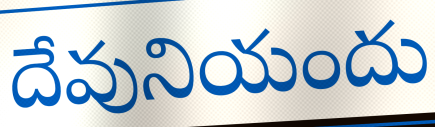
దేవునియందు